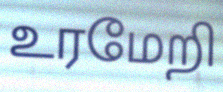
உரமேறி